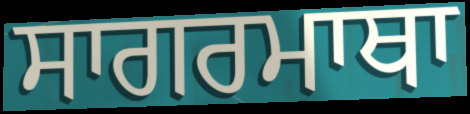
ਸਾਗਰਮਾਥਾ